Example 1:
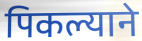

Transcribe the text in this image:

पिकल्याने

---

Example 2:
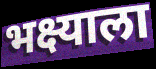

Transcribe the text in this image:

भक्ष्याला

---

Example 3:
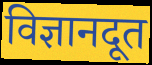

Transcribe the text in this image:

विज्ञानदूत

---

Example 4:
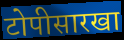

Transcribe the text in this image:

टोपीसारखा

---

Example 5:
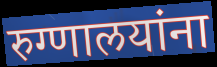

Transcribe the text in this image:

रुग्णालयांना